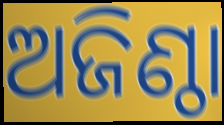
ଅଜିଣ୍ଠା